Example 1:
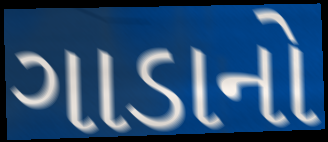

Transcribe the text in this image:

ગાડાનો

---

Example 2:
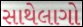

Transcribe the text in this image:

સાથેલાગો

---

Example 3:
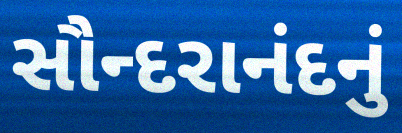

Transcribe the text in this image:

સૌન્દરાનંદનું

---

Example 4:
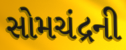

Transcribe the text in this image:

સોમચંદ્રની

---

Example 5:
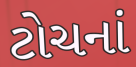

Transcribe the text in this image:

ટોચનાં